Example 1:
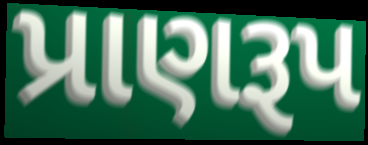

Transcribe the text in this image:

પ્રાણરૂપ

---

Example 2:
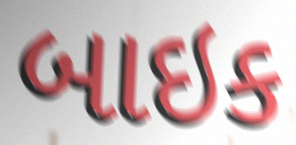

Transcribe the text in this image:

બાઇક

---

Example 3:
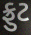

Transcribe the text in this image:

ફ્રુટ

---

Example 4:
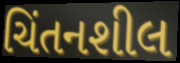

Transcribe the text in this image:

ચિંતનશીલ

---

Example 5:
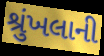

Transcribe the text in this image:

શ્રુંખલાની